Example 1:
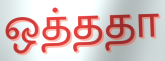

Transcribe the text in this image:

ஒத்ததா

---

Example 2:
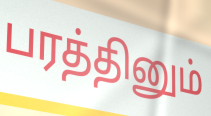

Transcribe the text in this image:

பரத்தினும்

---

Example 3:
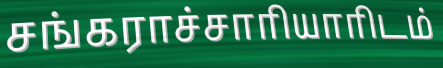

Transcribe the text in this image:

சங்கராச்சாரியாரிடம்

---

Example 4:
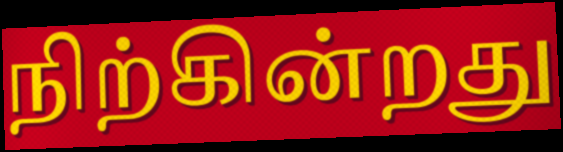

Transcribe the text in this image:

நிற்கின்றது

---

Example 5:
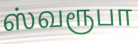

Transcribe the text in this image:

ஸ்வரூபா